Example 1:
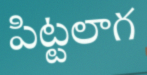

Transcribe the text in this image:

పిట్టలాగ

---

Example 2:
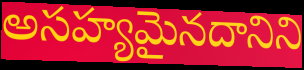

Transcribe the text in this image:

అసహ్యమైనదానిని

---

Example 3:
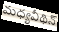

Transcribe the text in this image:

మధ్యవీథిన్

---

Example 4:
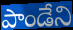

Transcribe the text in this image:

పాండేని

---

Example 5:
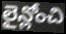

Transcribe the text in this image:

లైన్లోంచి